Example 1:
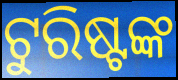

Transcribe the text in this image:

ଟୁରିଷ୍ଟଙ୍କ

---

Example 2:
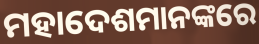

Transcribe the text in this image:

ମହାଦେଶମାନଙ୍କରେ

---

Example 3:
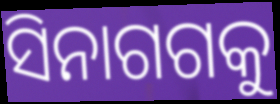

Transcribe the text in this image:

ସିନାଗଗକୁ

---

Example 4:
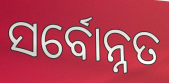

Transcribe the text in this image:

ସର୍ବୋନ୍ନତ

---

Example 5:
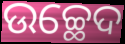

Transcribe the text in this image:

ଉଚ୍ଛେଦ